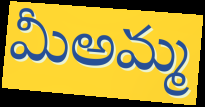
మీఅమ్మ